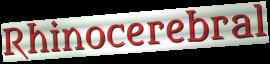
Rhinocerebral